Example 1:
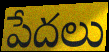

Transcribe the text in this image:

పేదలు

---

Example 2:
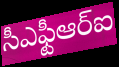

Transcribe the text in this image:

సీఎఫ్టీఆర్ఐ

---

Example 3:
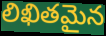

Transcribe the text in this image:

లిఖితమైన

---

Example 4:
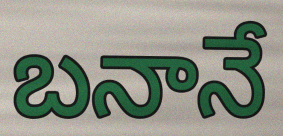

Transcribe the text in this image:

బనానే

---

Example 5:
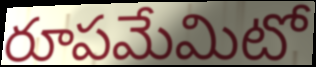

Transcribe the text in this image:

రూపమేమిటో